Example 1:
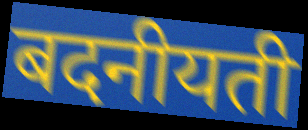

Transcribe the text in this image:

बदनीयती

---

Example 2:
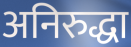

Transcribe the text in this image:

अनिरुद्धा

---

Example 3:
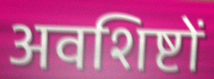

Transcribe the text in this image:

अवशिष्टों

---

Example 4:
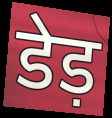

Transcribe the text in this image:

डेड़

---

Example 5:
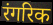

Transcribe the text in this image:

रंगरिक